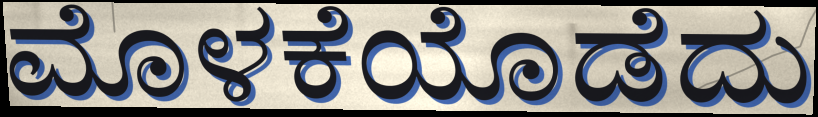
ಮೊಳಕೆಯೊಡೆದು